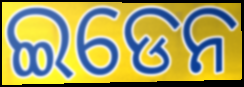
ଇଡେନ